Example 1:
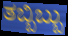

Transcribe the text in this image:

ತಬ್ಬಿಬ್ಬು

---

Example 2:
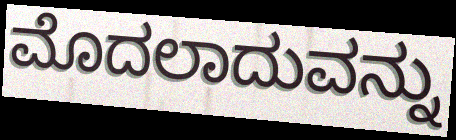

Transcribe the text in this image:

ಮೊದಲಾದುವನ್ನು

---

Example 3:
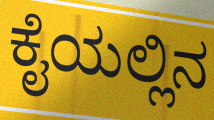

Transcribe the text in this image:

ಕೈಯಲ್ಲಿನ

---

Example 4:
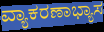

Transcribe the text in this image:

ವ್ಯಾಕರಣಾಭ್ಯಾಸ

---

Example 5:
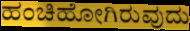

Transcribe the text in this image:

ಹಂಚಿಹೋಗಿರುವುದು